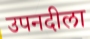
उपनदीला